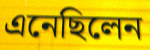
এনেছিলেন